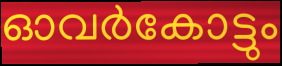
ഓവർകോട്ടും